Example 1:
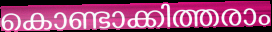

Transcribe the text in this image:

കൊണ്ടാക്കിത്തരാം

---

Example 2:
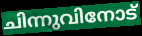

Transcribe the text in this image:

ചിന്നുവിനോട്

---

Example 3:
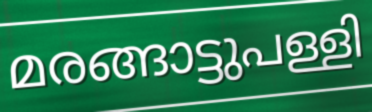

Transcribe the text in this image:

മരങ്ങാട്ടുപള്ളി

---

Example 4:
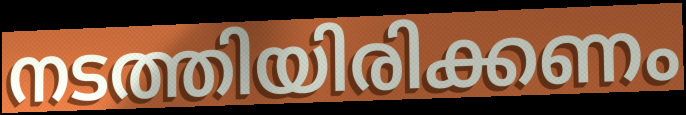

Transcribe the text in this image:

നടത്തിയിരിക്കണം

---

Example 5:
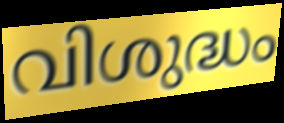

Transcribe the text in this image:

വിശുദ്ധം